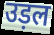
उड़ल